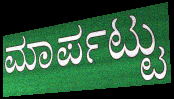
ಮಾರ್ಪಟ್ಟು